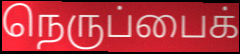
நெருப்பைக்